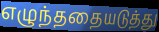
எழுந்ததையடுத்து